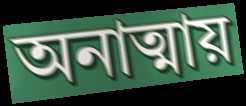
অনাত্মায়